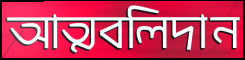
আত্মবলিদান